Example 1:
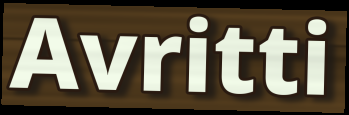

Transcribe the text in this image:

Avritti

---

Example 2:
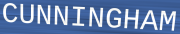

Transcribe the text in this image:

CUNNINGHAM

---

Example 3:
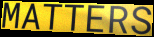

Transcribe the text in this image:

MATTERS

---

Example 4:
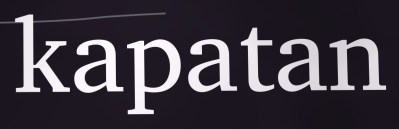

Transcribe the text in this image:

kapatan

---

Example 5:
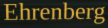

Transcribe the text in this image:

Ehrenberg